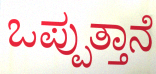
ಒಪ್ಪುತ್ತಾನೆ